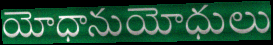
యోధానుయోధులు